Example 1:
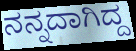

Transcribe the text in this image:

ನನ್ನದಾಗಿದ್ದ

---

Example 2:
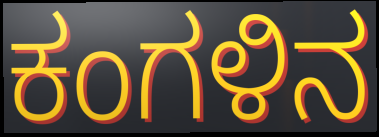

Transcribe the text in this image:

ಕಂಗಳಿನ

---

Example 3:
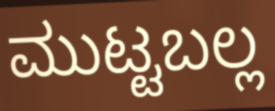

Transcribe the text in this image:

ಮುಟ್ಟಬಲ್ಲ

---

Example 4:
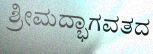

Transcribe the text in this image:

ಶ್ರೀಮದ್ಭಾಗವತದ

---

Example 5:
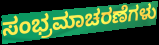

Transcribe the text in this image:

ಸಂಭ್ರಮಾಚರಣೆಗಳು